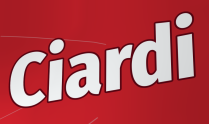
Ciardi